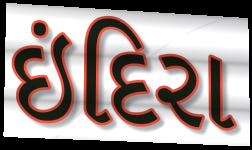
ઇંદિરા